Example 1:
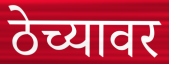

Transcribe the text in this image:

ठेच्यावर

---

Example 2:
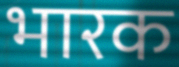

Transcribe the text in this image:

भारक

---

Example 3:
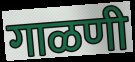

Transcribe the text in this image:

गाळणी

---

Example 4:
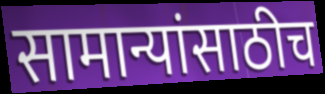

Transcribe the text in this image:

सामान्यांसाठीच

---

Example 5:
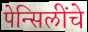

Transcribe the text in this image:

पेन्सिलींचे